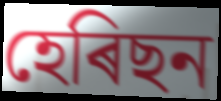
হেৰিছন